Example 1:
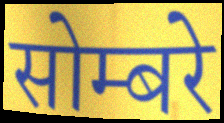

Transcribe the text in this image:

सोम्बरे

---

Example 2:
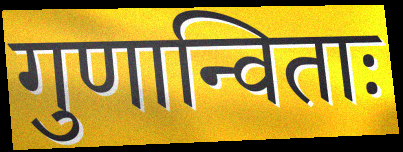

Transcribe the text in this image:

गुणान्विताः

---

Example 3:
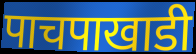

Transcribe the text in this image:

पाचपाखाडी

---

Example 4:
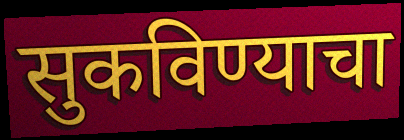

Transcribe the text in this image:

सुकविण्याचा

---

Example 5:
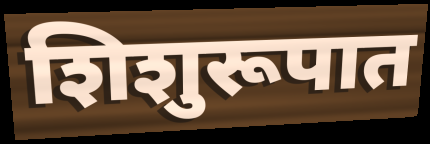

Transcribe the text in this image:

शिशुरूपात